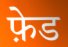
फ़ेड